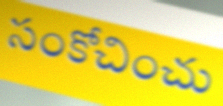
సంకోచించు